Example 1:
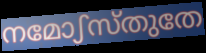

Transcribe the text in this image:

നമോഽസ്തുതേ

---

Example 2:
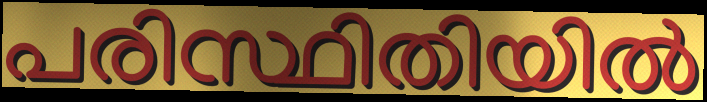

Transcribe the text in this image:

പരിസ്ഥിതിയിൽ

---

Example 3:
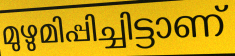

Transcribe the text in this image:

മുഴുമിപ്പിച്ചിട്ടാണ്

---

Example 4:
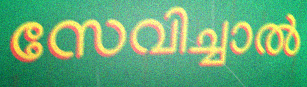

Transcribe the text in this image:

സേവിച്ചാൽ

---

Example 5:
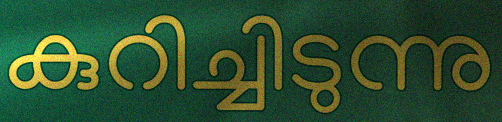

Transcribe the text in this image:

കുറിച്ചിടുന്നു